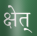
क्षेत्